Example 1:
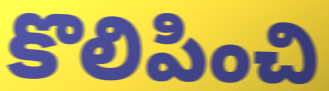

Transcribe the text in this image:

కొలిపించి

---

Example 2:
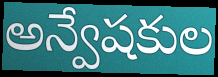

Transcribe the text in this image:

అన్వేషకుల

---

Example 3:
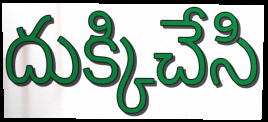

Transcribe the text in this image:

దుక్కిచేసి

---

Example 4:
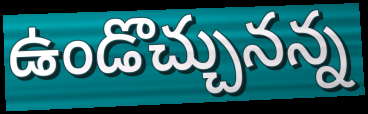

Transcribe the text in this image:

ఉండొచ్చునన్న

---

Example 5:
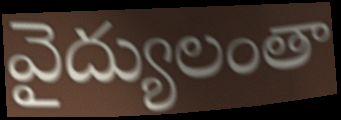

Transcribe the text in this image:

వైద్యులంతా